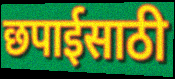
छपाईसाठी